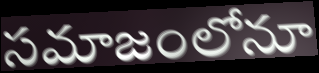
సమాజంలోనూ